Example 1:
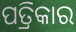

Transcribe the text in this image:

ପତ୍ରିକାର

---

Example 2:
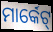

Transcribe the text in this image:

ମାର୍କେଟ୍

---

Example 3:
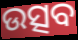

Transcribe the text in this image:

ଉତ୍ସବ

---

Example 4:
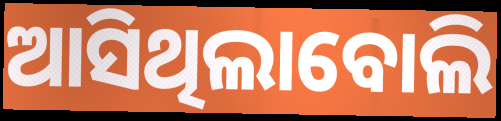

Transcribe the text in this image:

ଆସିଥିଲାବୋଲି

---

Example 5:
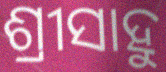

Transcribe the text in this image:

ଶ୍ରୀସାହୁ